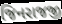
જિનરાજજી